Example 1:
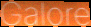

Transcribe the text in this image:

Galore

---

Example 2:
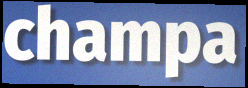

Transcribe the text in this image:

champa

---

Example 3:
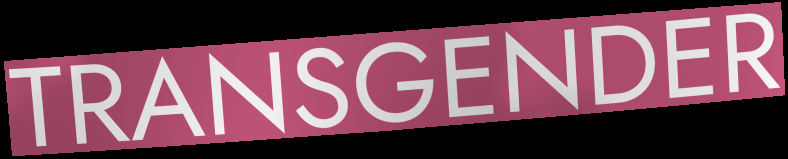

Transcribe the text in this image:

TRANSGENDER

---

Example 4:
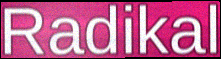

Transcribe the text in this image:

Radikal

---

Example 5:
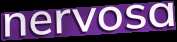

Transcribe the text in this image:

nervosa